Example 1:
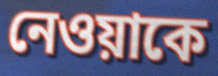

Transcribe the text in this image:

নেওয়াকে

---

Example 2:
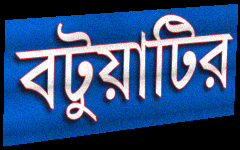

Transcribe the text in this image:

বটুয়াটির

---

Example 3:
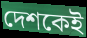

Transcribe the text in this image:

দেশকেই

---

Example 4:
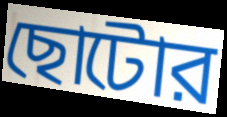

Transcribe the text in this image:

ছোটোর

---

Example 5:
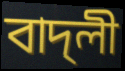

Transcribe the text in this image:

বাদ্‌লী